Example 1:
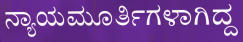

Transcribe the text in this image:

ನ್ಯಾಯಮೂರ್ತಿಗಳಾಗಿದ್ದ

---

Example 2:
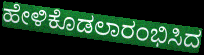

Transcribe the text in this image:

ಹೇಳಿಕೊಡಲಾರಂಭಿಸಿದ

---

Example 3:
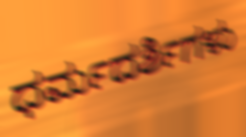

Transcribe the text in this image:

ಧರ್ಮದರ್ಶಿಗಳು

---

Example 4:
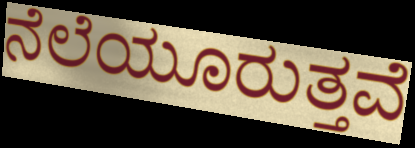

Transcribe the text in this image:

ನೆಲೆಯೂರುತ್ತವೆ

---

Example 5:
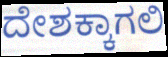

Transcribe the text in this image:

ದೇಶಕ್ಕಾಗಲಿ